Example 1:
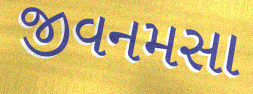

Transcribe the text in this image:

જીવનમસા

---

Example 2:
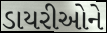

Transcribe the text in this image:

ડાયરીઓને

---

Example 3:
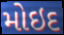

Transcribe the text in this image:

મોઇદ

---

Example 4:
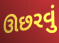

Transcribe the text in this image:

ઊછરવું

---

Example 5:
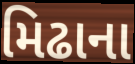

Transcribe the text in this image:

મિઢાના